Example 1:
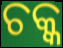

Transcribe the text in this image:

ଚକ୍କ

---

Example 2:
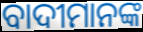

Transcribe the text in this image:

ବାଦୀମାନଙ୍କ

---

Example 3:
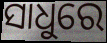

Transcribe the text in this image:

ସାଧୁରେ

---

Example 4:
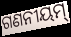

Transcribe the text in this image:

ଗଣନୀୟମ୍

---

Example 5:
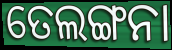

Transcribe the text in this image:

ତେଲଙ୍ଗନା